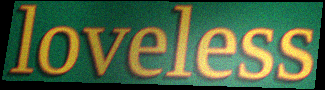
loveless